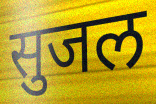
सुजल